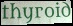
thyroid